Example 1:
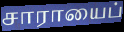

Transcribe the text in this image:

சாராயைப்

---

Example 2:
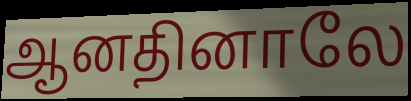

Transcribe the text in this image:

ஆனதினாலே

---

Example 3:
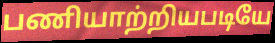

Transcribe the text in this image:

பணியாற்றியபடியே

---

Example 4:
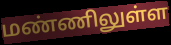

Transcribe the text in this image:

மண்ணிலுள்ள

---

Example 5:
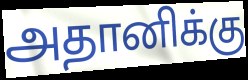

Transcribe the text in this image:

அதானிக்கு